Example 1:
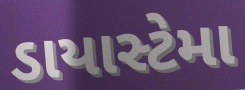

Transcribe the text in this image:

ડાયાસ્ટેમા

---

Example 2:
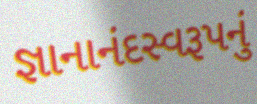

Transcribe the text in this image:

જ્ઞાનાનંદસ્વરૂપનું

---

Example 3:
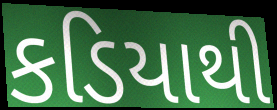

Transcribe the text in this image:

કડિયાથી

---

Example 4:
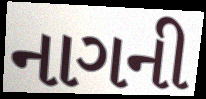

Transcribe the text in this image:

નાગની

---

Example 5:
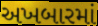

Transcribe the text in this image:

અખબારમાં